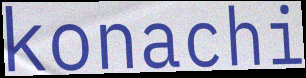
konachi